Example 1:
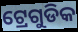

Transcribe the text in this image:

ଟ୍ରେଗୁଡିକ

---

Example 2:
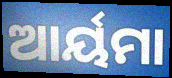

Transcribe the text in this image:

ଆର୍ୟମା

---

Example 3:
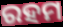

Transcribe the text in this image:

ରହମ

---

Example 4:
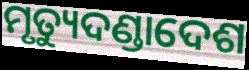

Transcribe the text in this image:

ମୃତ୍ୟୁଦଣ୍ଡାଦେଶ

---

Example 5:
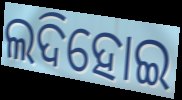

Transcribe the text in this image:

ଲଦିହୋଇ